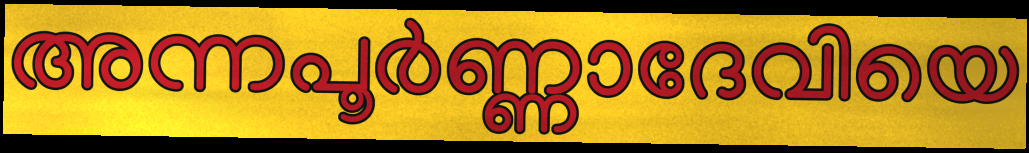
അന്നപൂർണ്ണാദേവിയെ